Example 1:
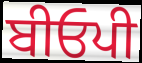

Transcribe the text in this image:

ਬੀਓਪੀ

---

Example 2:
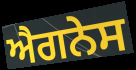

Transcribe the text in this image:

ਐਗਨੇਸ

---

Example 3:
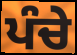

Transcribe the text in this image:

ਪੰਚੇ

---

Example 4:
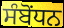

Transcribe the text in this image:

ਸੰਬੋੰਧਨ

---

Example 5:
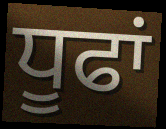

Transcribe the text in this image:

ਧੂਫਾਂ